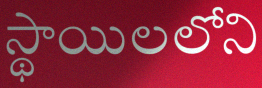
స్థాయిలలోని